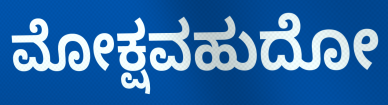
ಮೋಕ್ಷವಹುದೋ